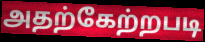
அதற்கேற்றபடி